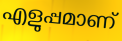
എളുപ്പമാണ്